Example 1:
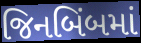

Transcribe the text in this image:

જિનબિંબમાં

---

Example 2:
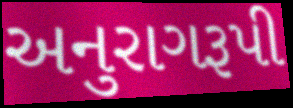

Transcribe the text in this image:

અનુરાગરૂપી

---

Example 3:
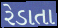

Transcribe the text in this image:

રેડાતા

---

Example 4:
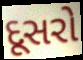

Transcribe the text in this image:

દૂસરો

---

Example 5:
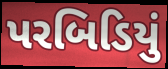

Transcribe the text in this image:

પરબિડિયું